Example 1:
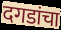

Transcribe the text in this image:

दगडांचा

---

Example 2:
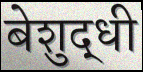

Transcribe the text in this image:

बेशुद्धी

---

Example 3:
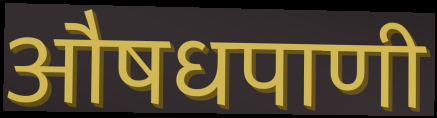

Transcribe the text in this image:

औषधपाणी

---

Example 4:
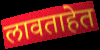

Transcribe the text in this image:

लावताहेत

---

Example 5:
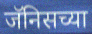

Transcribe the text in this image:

जॅनिसच्या